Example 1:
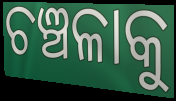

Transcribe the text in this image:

ଚଞ୍ଚଳାକୁ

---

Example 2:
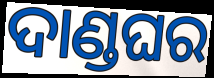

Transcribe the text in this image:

ଦାଣ୍ଡଘର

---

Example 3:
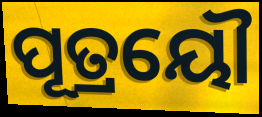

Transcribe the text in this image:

ପୂତ୍ରୟୌ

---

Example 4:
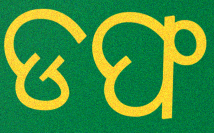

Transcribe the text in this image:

ଡଫ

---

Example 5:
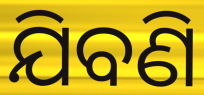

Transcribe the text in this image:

ଯିବଣି